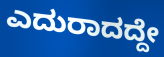
ಎದುರಾದದ್ದೇ